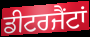
ਡੀਟਰਜੈਂਟਾਂ